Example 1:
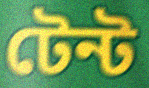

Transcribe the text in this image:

টেন্ট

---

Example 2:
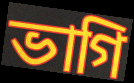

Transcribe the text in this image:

ভাগি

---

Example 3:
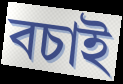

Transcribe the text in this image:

বচাই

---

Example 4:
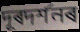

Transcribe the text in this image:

দূৰদৰ্শনৰ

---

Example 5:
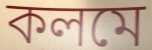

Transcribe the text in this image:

কলমে